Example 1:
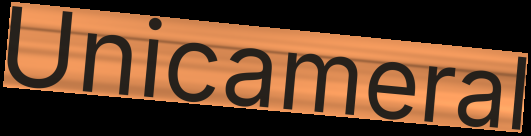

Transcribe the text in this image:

Unicameral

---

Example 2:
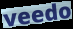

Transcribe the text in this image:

veedo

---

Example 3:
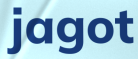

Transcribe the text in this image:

jagot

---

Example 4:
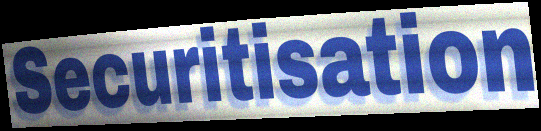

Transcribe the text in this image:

Securitisation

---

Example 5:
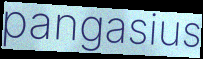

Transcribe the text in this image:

pangasius